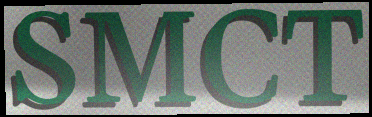
SMCT